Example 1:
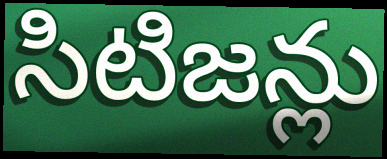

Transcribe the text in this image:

సిటిజన్లు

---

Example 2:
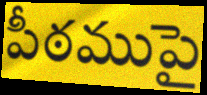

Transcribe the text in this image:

పీఠముపై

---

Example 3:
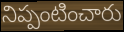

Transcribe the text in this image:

నిప్పంటించారు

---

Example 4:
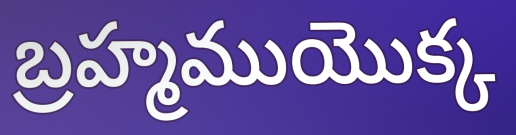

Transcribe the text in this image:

బ్రహ్మముయొక్క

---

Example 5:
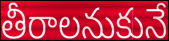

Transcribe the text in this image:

తీరాలనుకునే